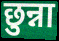
छुन्ना